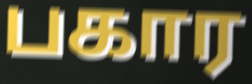
பகார